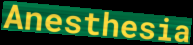
Anesthesia